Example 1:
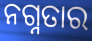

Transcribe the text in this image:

ନଗ୍ନତାର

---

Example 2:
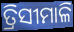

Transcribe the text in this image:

ତ୍ରିସୀମାଳି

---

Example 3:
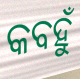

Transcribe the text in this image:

କବହୁଁ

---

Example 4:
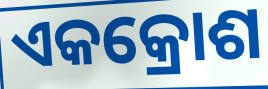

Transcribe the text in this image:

ଏକକ୍ରୋଶ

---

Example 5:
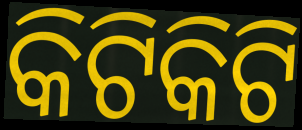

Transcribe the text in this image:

କିଟିକିଟି